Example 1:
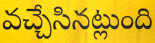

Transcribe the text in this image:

వచ్చేసినట్లుంది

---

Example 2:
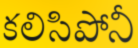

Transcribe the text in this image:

కలిసిపోనీ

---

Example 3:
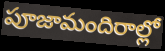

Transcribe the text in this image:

పూజామందిరాల్లో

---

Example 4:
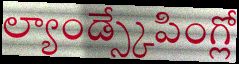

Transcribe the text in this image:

ల్యాండ్స్కేపింగ్లో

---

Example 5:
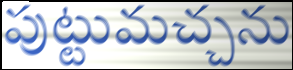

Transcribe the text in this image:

పుట్టుమచ్చను